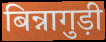
बिन्नागुड़ी